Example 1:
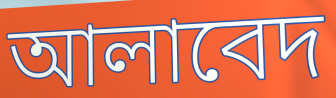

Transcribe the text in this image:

আলাবেদ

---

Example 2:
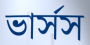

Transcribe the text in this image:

ভার্সস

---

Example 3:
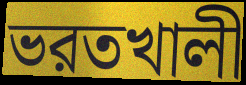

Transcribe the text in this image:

ভরতখালী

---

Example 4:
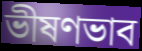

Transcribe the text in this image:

ভীষণভাব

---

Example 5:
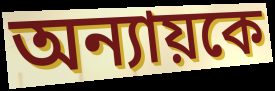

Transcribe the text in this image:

অন্যায়কে